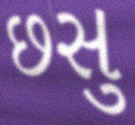
છસુ